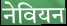
नेवियन